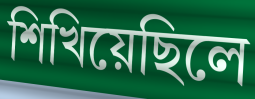
শিখিয়েছিলে